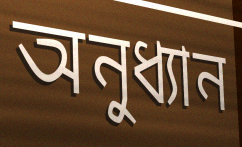
অনুধ্যান